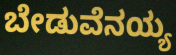
ಬೇಡುವೆನಯ್ಯ